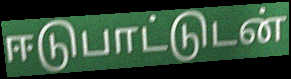
ஈடுபாட்டுடன்